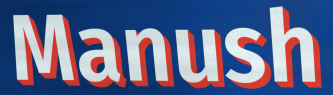
Manush